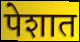
पेशात